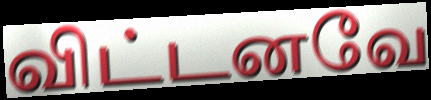
விட்டனவே